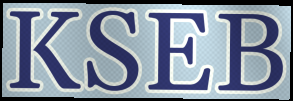
KSEB